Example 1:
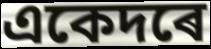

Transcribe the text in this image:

একেদৰে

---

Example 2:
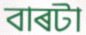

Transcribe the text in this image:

বাৰটা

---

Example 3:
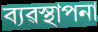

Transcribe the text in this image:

ব্যৱস্থাপনা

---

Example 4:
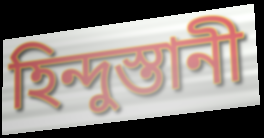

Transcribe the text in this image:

হিন্দুস্তানী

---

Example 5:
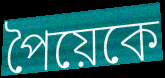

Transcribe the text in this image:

পৈয়েকে